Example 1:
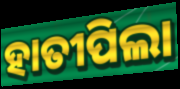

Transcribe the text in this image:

ହାତୀପିଲା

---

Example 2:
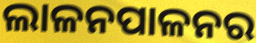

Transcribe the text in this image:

ଲାଳନପାଳନର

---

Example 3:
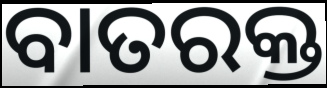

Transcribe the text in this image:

ବାତରକ୍ତ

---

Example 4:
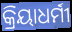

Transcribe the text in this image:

କ୍ରିୟାଧର୍ମୀ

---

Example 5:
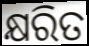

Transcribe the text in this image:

କ୍ଷରିତ